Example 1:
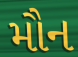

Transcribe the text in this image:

મૌન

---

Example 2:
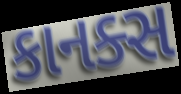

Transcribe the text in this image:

કાનક્સ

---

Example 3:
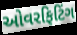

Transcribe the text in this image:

ઓવરફિટિંગ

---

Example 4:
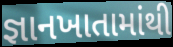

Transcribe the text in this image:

જ્ઞાનખાતામાંથી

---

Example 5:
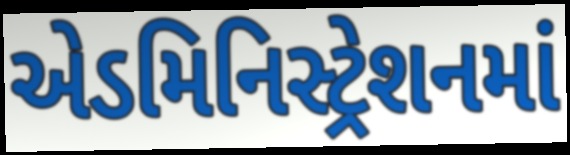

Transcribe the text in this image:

એડમિનિસ્ટ્રેશનમાં